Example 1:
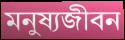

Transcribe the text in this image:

মনুষ্যজীবন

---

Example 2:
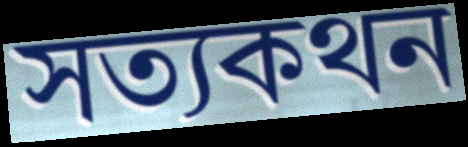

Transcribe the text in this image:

সত্যকথন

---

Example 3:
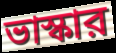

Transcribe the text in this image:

ভাস্কার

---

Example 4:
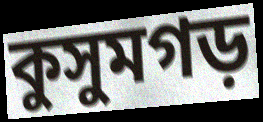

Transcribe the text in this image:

কুসুমগড়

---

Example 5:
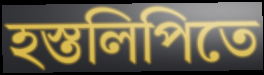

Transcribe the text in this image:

হস্তলিপিতে